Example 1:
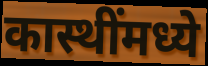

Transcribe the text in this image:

कास्थींमध्ये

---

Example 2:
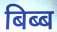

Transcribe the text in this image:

बिब्ब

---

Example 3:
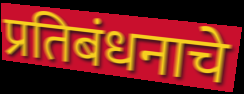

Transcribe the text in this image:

प्रतिबंधनाचे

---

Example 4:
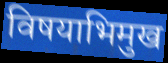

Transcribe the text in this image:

विषयाभिमुख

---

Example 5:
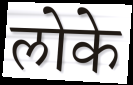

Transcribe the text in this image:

लोके